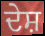
ਦੇਸ਼